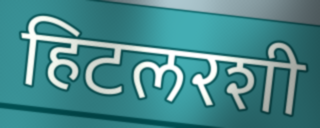
हिटलरशी